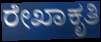
ರೇಖಾಕೃತಿ